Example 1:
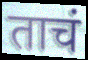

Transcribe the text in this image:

ताचं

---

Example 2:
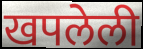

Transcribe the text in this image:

खपलेली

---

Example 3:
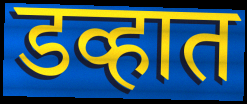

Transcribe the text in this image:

डव्हात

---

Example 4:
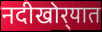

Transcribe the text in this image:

नदीखोर्‍यात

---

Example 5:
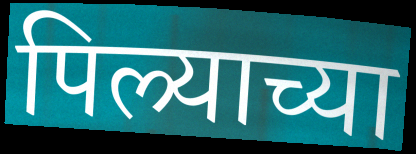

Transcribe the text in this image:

पिल्याच्या